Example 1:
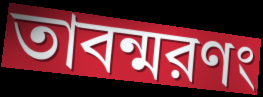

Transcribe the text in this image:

তাবন্মরণং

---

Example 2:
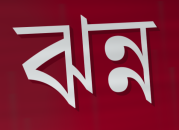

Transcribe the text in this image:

ঝন্ন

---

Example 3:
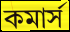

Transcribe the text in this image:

কমার্স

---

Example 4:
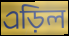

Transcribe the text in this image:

এড়িল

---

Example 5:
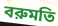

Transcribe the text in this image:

বরুমতি